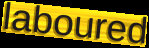
laboured